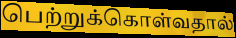
பெற்றுக்கொள்வதால்